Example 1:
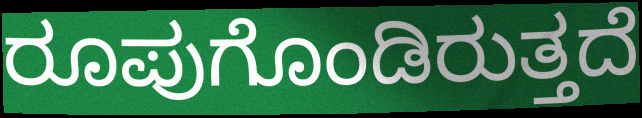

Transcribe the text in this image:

ರೂಪುಗೊಂಡಿರುತ್ತದೆ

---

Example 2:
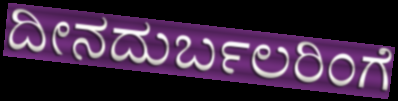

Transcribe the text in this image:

ದೀನದುರ್ಬಲರಿಂಗೆ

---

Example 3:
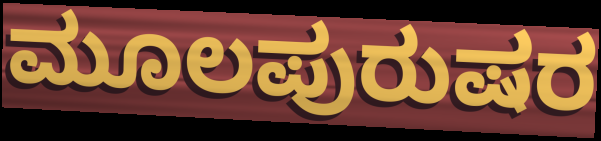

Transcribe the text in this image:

ಮೂಲಪುರುಷರ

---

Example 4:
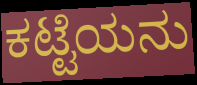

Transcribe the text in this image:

ಕಟ್ಟೆಯನು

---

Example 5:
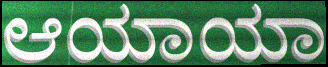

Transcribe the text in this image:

ಆಯಾಯಾ